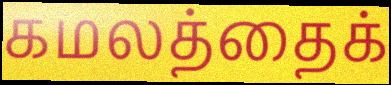
கமலத்தைக்